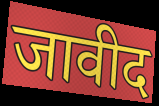
जावीद